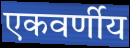
एकवर्णीय